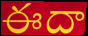
ఈదా